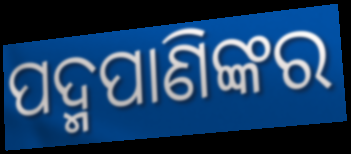
ପଦ୍ମପାଣିଙ୍କର